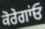
ਕੋਰੇਗਾਂਓ